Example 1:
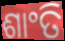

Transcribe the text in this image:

ଶାଂତି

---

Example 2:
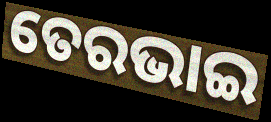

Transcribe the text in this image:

ତେରଭାଇ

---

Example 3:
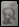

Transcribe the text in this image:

ଉୁଁ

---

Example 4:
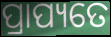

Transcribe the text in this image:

ପ୍ରାପ୍ୟତେ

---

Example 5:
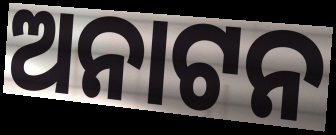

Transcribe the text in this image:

ଅନାଟନ